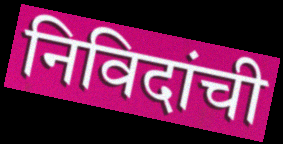
निविदांची